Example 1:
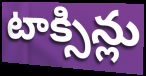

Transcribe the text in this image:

టాక్సిన్లు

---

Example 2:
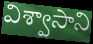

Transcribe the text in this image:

విశ్వాసాని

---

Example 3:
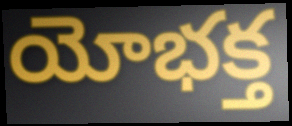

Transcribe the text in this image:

యోభక్త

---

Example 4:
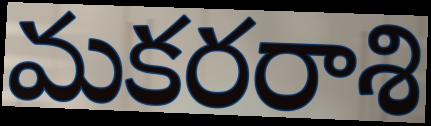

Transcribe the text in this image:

మకరరాశి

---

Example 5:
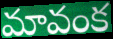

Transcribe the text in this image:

మావంక